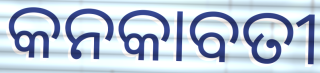
କନକାବତୀ